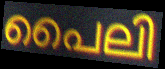
പൈലി